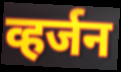
व्हर्जन